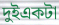
দুইএকটা